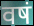
वषं